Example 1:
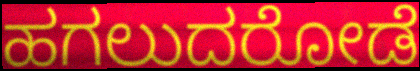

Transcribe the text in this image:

ಹಗಲುದರೋಡೆ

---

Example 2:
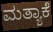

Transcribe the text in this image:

ಮತ್ಯಾಕೆ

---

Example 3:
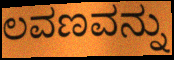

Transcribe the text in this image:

ಲವಣವನ್ನು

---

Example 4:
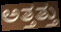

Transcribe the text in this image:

ಅತ್ತತ್ತು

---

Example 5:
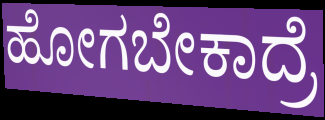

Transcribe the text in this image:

ಹೋಗಬೇಕಾದ್ರೆ